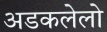
अडकलेलो